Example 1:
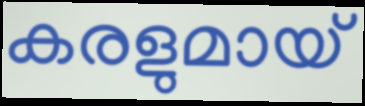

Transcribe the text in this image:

കരളുമായ്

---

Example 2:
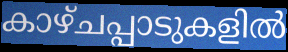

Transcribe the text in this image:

കാഴ്ചപ്പാടുകളിൽ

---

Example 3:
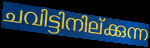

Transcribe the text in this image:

ചവിട്ടിനില്ക്കുന്ന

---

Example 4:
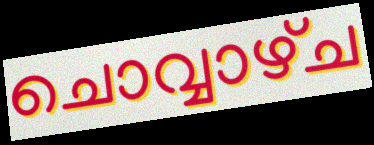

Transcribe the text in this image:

ചൊവ്വാഴ്‌ച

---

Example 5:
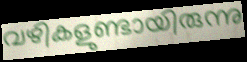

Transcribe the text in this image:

വഴികളുണ്ടായിരുന്നു